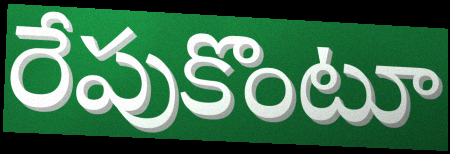
రేపుకొంటూ